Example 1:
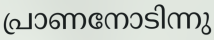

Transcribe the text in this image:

പ്രാണനോടിന്നു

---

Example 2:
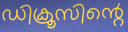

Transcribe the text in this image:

ഡിക്രൂസിന്റെ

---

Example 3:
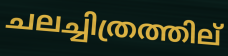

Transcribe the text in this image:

ചലച്ചിത്രത്തില്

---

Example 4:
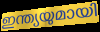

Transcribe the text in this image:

ഇന്ത്യയുമായി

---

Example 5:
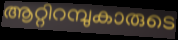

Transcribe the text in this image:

ആറ്റിറമ്പുകാരുടെ